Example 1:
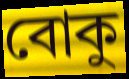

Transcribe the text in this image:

বোকু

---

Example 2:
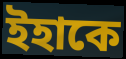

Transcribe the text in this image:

ইহাকে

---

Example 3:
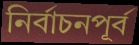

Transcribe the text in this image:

নির্বাচনপূর্ব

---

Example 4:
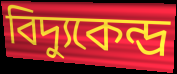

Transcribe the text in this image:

বিদ্যুকেন্দ্র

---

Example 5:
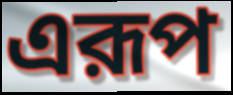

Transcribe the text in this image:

এরূপ